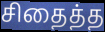
சிதைத்த